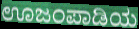
ಊಜಂಪಾಡಿಯ